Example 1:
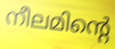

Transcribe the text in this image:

നീലമിന്റെ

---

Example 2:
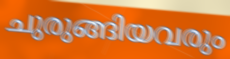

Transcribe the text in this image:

ചുരുങ്ങിയവരും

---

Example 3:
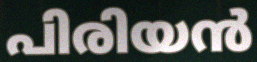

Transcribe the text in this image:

പിരിയൻ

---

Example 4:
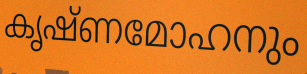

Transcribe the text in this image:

കൃഷ്ണമോഹനും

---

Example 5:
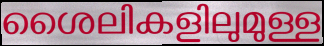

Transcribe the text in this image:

ശൈലികളിലുമുള്ള